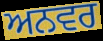
ਅਨਵਰ